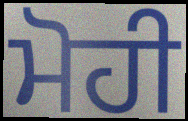
ਮੋਹੀ